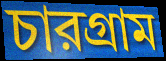
চারগ্রাম